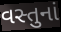
વસ્તુનાં